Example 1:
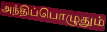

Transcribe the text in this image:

அந்திப்பொழுதும்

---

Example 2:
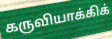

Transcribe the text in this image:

கருவியாக்கிக்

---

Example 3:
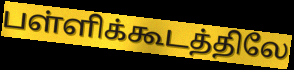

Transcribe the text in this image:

பள்ளிக்கூடத்திலே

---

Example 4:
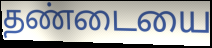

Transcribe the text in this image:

தண்டையை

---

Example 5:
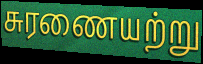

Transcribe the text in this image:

சுரணையற்று